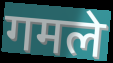
गमले